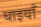
धाइयाँ